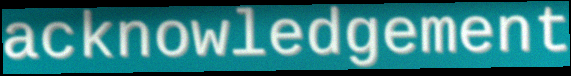
acknowledgement